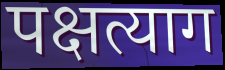
पक्षत्याग